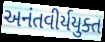
અનંતવીર્યયુક્ત